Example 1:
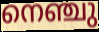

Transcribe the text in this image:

നെഞ്ചു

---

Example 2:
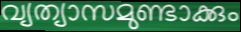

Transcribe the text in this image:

വ്യത്യാസമുണ്ടാക്കും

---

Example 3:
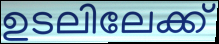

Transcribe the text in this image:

ഉടലിലേക്ക്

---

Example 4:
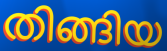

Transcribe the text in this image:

തിങ്ങിയ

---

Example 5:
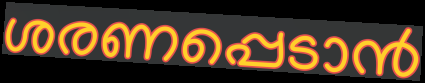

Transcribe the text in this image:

ശരണപ്പെടാൻ